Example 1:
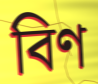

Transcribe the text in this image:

বিণ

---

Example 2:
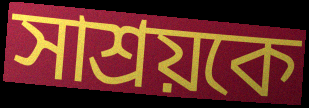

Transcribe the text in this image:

সাশ্রয়কে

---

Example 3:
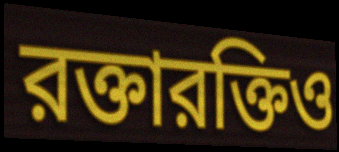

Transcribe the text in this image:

রক্তারক্তিও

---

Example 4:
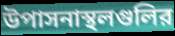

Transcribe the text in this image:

উপাসনাস্থলগুলির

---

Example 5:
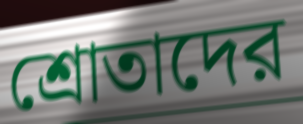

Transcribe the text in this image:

শ্রোতাদের